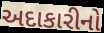
અદાકારીનો